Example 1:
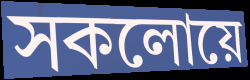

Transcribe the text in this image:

সকলোয়ে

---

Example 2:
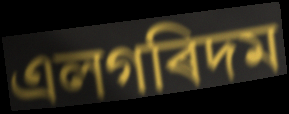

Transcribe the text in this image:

এলগৰিদম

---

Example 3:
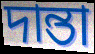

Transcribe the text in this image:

দান্তা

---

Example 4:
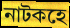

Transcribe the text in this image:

নাটকহে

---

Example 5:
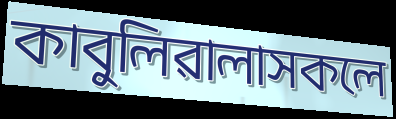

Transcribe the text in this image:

কাবুলিৱালাসকলে